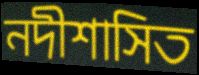
নদীশাসিত